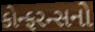
કોન્ફરન્સનો